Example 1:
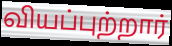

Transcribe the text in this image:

வியப்புற்றார்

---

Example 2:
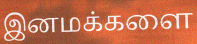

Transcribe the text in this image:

இனமக்களை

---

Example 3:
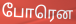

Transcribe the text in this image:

போரென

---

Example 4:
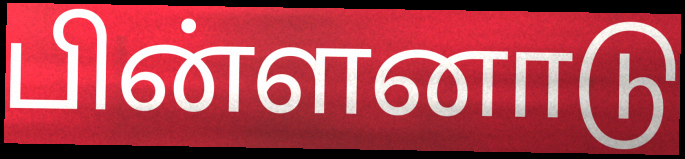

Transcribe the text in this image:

பின்ளனாடு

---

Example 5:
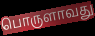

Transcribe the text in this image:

பொருளாவது